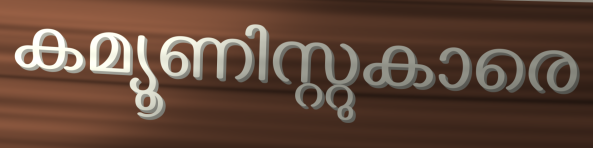
കമ്യൂണിസ്റ്റുകാരെ